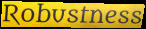
Robustness